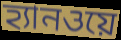
হ্যানওয়ে